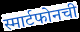
स्मार्टफोनची